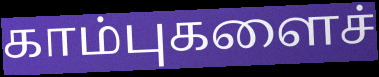
காம்புகளைச்